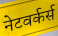
नेटवर्कर्स